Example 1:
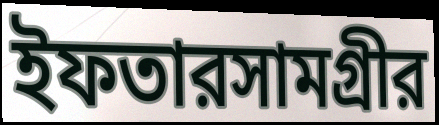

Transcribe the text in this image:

ইফতারসামগ্রীর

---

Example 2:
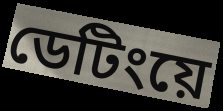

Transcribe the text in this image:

ডেটিংয়ে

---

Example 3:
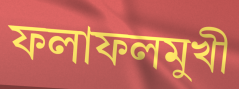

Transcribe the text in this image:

ফলাফলমুখী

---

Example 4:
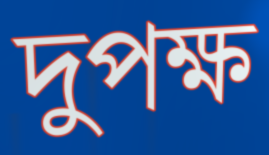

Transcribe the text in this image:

দুপক্ষ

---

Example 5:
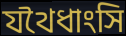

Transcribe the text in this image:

যথৈধাংসি